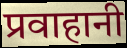
प्रवाहानी